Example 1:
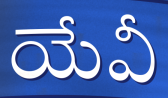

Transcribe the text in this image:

యేవీ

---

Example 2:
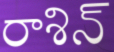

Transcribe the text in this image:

రాశిన్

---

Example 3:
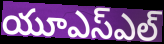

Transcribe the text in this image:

యూఎస్ఎల్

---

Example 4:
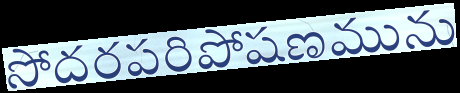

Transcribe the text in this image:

సోదరపరిపోషణమును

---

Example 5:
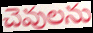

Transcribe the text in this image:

చెవులను